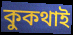
কুকথাই